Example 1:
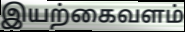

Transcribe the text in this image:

இயற்கைவளம்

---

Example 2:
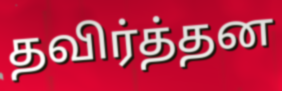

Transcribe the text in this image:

தவிர்த்தன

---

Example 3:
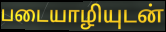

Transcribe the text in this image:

படையாழியுடன்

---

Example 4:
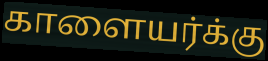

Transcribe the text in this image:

காளையர்க்கு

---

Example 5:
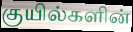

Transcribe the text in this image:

குயில்களின்